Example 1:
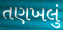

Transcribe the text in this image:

તણખલું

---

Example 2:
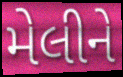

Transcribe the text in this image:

મેલીને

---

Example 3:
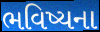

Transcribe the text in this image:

ભવિષ્યના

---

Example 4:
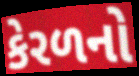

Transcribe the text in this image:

કેરળનો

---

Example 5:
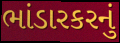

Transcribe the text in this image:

ભાંડારકરનું